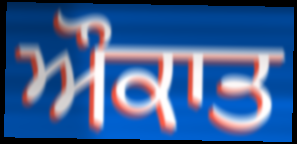
ਔਕਾਤ